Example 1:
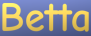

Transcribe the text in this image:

Betta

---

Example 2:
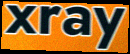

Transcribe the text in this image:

xray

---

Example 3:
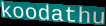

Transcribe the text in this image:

koodathu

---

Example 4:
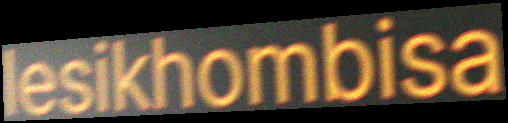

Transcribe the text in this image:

lesikhombisa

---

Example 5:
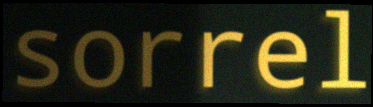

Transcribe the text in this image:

sorrel